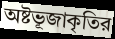
অষ্টভূজাকৃতির